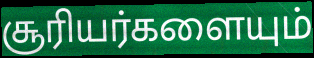
சூரியர்களையும்